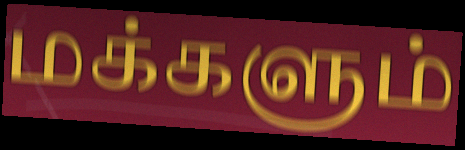
மக்களும்